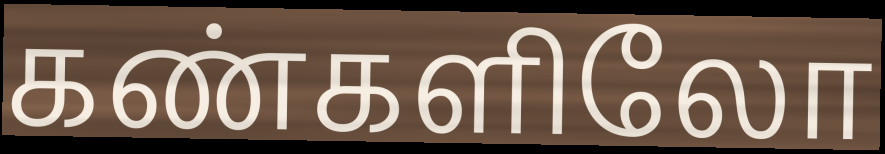
கண்களிலோ